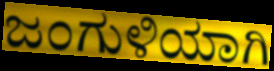
ಜಂಗುಳಿಯಾಗಿ